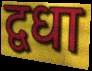
द्वधा